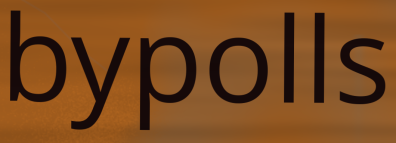
bypolls